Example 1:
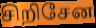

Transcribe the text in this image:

சிறிசேன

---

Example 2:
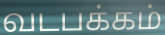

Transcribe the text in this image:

வடபக்கம்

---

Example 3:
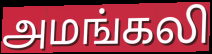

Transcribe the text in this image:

அமங்கலி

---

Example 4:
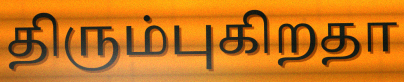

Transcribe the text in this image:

திரும்புகிறதா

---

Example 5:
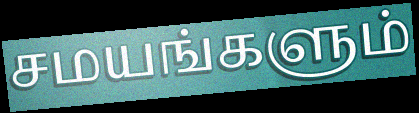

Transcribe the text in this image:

சமயங்களும்